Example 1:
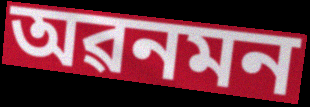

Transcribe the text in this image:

অৱনমন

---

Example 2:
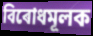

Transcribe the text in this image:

বিৰোধমূলক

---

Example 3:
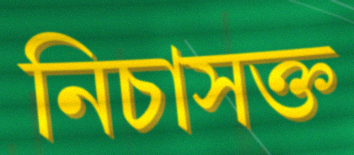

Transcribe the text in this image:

নিচাসক্ত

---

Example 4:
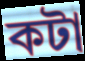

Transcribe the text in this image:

কটা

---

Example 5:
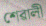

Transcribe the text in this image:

শেৱালী